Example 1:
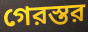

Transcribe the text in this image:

গেরস্তর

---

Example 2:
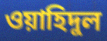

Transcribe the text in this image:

ওয়াহিদুল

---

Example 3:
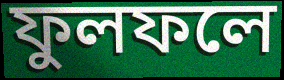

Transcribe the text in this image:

ফুলফলে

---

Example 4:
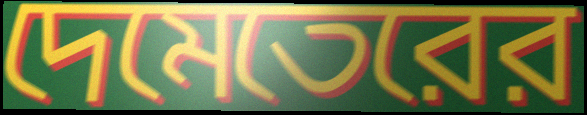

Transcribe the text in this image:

দেমেতেরের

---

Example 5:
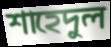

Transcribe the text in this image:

শাহেদুল